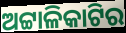
ଅଟ୍ଟାଳିକାଟିର